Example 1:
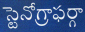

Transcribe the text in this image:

స్టెనోగ్రాఫర్గా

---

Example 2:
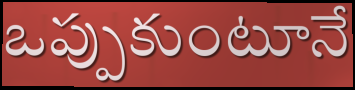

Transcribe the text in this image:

ఒప్పుకుంటూనే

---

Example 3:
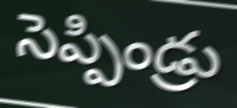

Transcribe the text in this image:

సెప్పిండ్రు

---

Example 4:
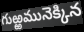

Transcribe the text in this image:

గుఱ్ఱమునెక్కిన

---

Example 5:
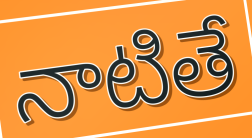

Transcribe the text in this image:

నాటితే